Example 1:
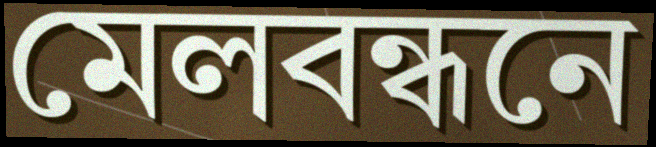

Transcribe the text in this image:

মেলবন্ধনে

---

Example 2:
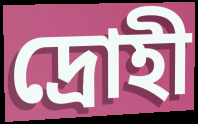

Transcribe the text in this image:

দ্রোহী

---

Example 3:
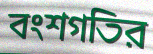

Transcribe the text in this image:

বংশগতির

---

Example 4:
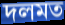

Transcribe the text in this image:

দলমত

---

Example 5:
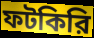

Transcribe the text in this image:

ফটকিরি